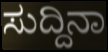
ಸುದ್ದಿನಾ